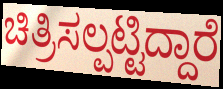
ಚಿತ್ರಿಸಲ್ಪಟ್ಟಿದ್ದಾರೆ